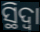
ସ୍ଥିଦ୍ଵା